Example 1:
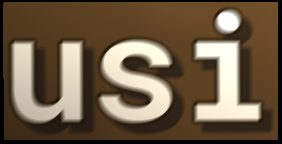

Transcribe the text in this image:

usi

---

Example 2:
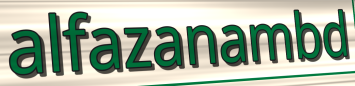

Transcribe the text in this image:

alfazanambd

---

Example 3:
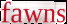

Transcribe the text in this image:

fawns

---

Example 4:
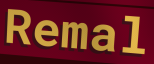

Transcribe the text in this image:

Remal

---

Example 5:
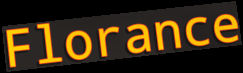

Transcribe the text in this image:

Florance